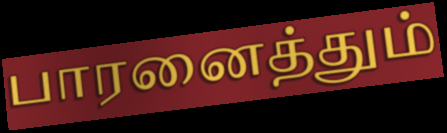
பாரனைத்தும்